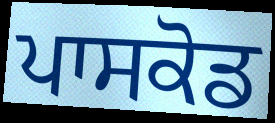
ਪਾਸਕੋਡ